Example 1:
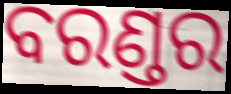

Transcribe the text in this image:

ବରଣ୍ଡର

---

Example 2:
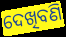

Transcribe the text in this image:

ଦେଖିବଣି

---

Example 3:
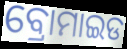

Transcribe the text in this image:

ବ୍ରୋମାଇଡ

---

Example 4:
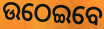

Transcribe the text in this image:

ଉଠେଇବେ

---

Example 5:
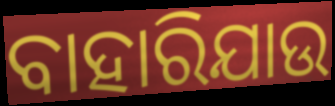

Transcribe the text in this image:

ବାହାରିଯାଉ